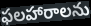
ఫలహారాలను